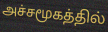
அச்சமூகத்தில்